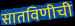
सातविणीची